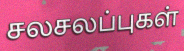
சலசலப்புகள்